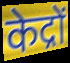
केद्रों